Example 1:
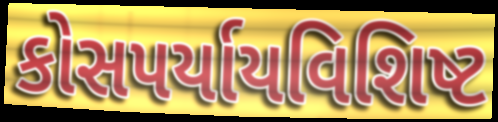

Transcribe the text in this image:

કોસપર્યાયવિશિષ્ટ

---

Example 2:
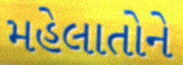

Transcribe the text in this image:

મહેલાતોને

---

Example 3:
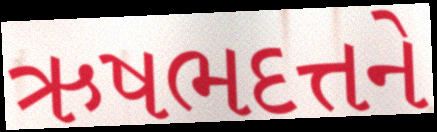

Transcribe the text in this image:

ઋષભદત્તને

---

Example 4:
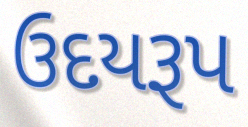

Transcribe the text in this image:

ઉદયરૂપ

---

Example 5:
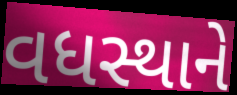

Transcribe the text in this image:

વધસ્થાને